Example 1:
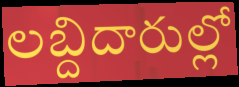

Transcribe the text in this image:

లబ్దిదారుల్లో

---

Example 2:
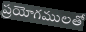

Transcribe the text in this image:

ప్రయోగములతో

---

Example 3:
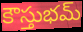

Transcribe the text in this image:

కౌస్తుభమ్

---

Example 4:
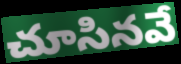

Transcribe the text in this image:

చూసినవే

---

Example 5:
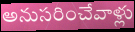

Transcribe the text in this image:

అనుసరించేవాళ్లు